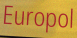
Europol